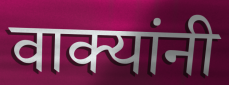
वाक्यांनी